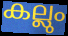
കല്ലും